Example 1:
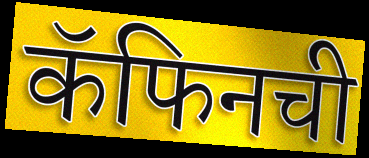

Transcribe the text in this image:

कॅफिनची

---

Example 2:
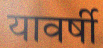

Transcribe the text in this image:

यावर्षी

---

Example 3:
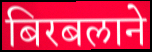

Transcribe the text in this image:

बिरबलाने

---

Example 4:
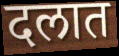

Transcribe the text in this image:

दलात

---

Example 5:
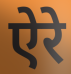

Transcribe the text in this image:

ऐरे